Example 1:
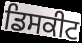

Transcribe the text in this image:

ਡਿਸਕੀਟ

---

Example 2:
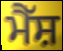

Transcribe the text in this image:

ਮੈੱਸ਼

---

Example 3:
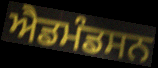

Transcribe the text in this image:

ਐਡਮੰਡਸਨ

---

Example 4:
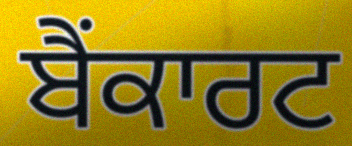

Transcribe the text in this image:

ਬੈਂਕਾਰਟ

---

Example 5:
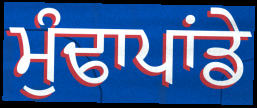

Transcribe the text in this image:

ਮੁੰਢਾਪਾਂਡੇ